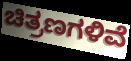
ಚಿತ್ರಣಗಳಿವೆ